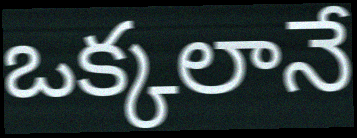
ఒక్కలానే